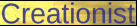
Creationist